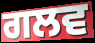
ਗਲਵ